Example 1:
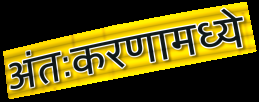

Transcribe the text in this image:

अंतःकरणामध्ये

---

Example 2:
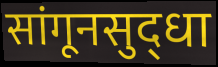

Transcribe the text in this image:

सांगूनसुद्धा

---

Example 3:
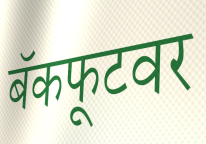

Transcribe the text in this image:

बॅकफूटवर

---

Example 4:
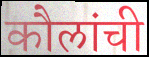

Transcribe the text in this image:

कौलांची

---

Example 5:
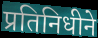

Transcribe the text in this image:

प्रतिनिधीने